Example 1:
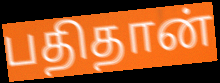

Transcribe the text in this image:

பதிதான்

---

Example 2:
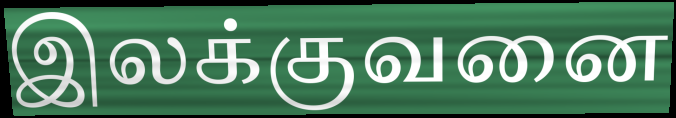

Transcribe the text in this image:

இலக்குவனை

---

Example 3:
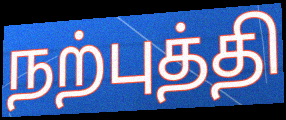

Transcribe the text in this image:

நற்புத்தி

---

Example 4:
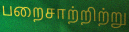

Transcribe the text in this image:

பறைசாற்றிற்று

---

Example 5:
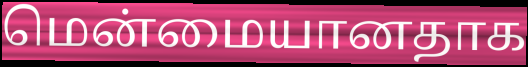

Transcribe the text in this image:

மென்மையானதாக